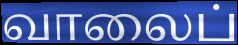
வாலைப்